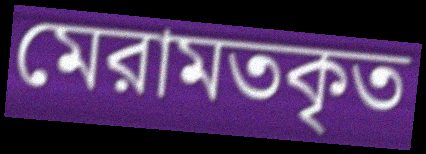
মেরামতকৃত